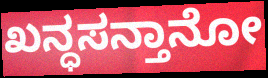
ಖನ್ಧಸನ್ತಾನೋ